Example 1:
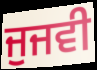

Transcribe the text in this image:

ਜੁਜਵੀ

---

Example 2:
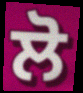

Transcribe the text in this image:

ਲੋ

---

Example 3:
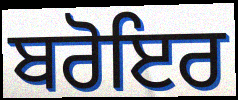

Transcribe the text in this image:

ਬਰੋਇਰ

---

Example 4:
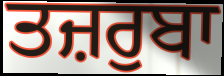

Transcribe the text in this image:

ਤਜ਼ਰੁਬਾ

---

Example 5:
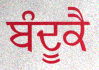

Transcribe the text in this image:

ਬੰਦੂਕੈ